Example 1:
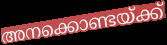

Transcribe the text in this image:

അനക്കൊണ്ടയ്ക്ക്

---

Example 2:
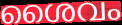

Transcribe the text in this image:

ശൈവം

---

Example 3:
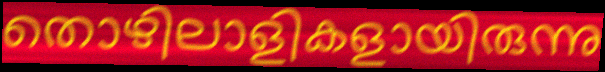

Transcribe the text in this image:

തൊഴിലാളികളായിരുന്നു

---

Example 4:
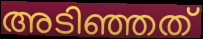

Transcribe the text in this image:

അടിഞ്ഞത്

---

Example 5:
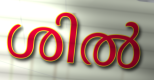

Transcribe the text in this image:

ശിൽ